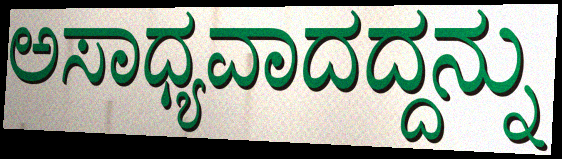
ಅಸಾಧ್ಯವಾದದ್ದನ್ನು